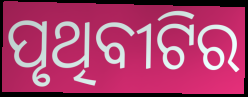
ପୃଥିବୀଟିର